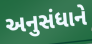
અનુસંધાને